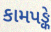
કામપઙ્કે